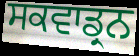
ਸਕਵਾਡ੍ਰਨ